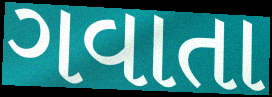
ગવાતા